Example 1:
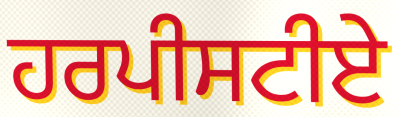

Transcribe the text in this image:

ਹਰਪੀਸਟੀਏ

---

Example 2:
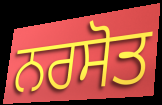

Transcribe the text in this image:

ਨਰਸੋਤ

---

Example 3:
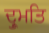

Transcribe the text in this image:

ਦ੍ਰੁਮਤਿ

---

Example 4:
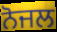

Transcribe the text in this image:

ਨੋਜਲ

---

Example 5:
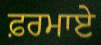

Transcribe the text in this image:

ਫ਼ਰਮਾਏ